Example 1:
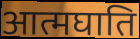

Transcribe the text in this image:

आत्मघाति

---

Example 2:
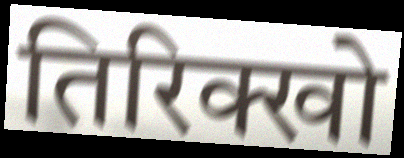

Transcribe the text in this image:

तिरिक्खो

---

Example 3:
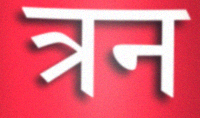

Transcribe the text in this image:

त्रन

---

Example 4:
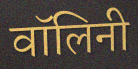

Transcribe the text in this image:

वॉलिनी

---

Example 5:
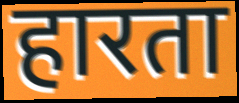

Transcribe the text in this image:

हारता